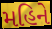
મહિને